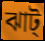
ঝাট্